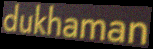
dukhaman